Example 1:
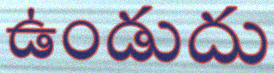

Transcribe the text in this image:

ఉండుదు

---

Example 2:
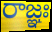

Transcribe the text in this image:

రాజ్ఞః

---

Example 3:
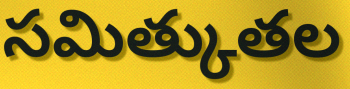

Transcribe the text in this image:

సమిత్కుతల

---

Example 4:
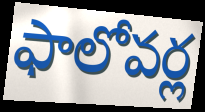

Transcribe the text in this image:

ఫాలోవర్ల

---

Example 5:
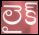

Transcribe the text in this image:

లైక్